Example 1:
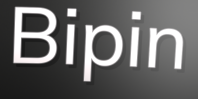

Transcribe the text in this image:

Bipin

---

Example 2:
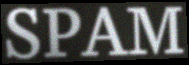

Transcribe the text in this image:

SPAM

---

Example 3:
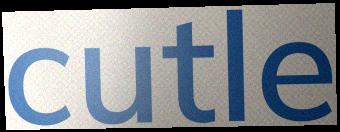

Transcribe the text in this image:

cutle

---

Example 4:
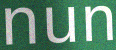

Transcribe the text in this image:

nun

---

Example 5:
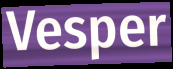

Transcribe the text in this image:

Vesper